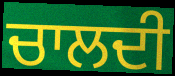
ਚਾਲਦੀ